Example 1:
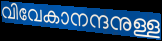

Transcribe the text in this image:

വിവേകാനന്ദനുള്ള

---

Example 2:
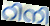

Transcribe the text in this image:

റിനി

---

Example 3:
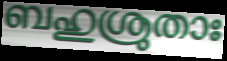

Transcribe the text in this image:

ബഹുശ്രുതാഃ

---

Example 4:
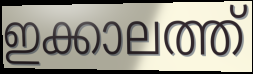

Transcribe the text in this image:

ഇക്കാലത്ത്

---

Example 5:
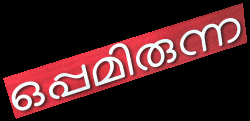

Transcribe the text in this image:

ഒപ്പമിരുന്ന